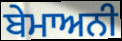
ਬੇਮਾਅਨੀ